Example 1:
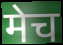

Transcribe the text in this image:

मेच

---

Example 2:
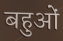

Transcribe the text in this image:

बहुओं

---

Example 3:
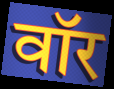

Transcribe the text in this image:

वॉर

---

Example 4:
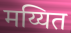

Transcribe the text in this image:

मय्यित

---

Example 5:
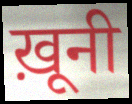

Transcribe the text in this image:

ख़ूनी